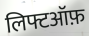
लिफ्टऑफ़